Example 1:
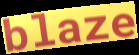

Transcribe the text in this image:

blaze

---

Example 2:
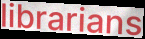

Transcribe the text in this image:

librarians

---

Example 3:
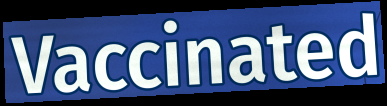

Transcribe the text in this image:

Vaccinated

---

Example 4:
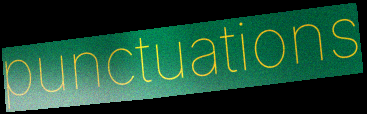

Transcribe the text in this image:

punctuations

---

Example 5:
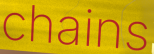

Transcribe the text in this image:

chains